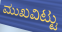
ಮುಖವಿಟ್ಟು